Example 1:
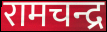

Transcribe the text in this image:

रामचन्‍द्र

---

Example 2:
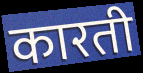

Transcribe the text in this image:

कारती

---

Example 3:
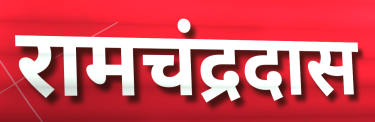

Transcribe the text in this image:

रामचंद्रदास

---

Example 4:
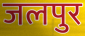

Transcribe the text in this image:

जलपुर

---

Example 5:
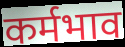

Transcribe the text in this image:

कर्मभाव